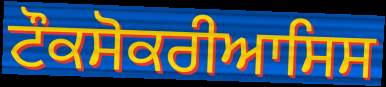
ਟੌਕਸੋਕਰੀਆਸਿਸ